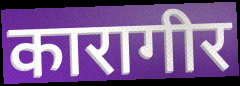
कारागीर